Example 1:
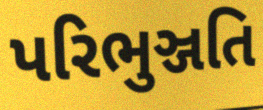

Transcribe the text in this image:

પરિભુઞ્જતિ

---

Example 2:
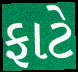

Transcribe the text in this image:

ફાટે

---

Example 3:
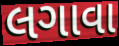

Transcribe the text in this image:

લગાવા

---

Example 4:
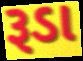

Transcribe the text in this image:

રૂડા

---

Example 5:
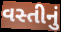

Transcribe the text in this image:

વસ્તીનું